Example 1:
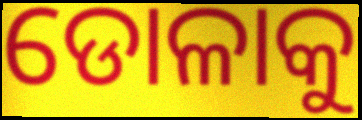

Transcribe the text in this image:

ଡୋଳାକୁ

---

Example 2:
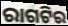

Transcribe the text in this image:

ରାଗଟିର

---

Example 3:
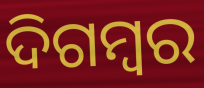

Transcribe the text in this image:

ଦିଗମ୍ବର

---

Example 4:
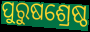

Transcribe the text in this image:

ପୁରୁଷଶ୍ରେଷ୍ଠ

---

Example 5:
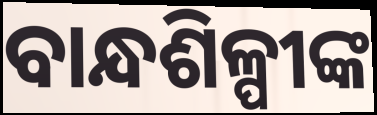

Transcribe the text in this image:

ବାନ୍ଧଶିଳ୍ପୀଙ୍କ